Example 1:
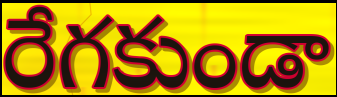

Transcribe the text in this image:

రేగకుండా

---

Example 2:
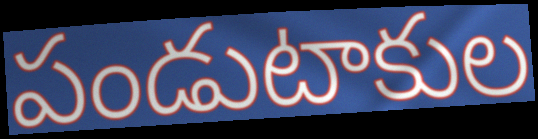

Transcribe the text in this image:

పండుటాకుల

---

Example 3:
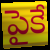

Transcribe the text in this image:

పైకే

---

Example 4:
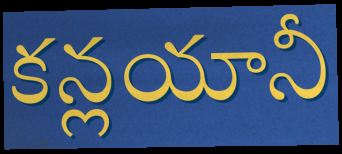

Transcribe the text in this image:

కన్లయానీ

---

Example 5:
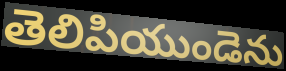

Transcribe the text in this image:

తెలిపియుండెను